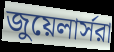
জুয়েলার্সরা